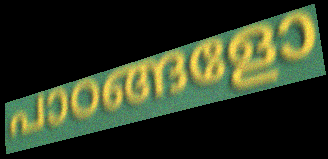
പാഠങ്ങളോ